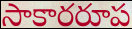
సాకారరూప